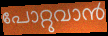
പോറ്റുവാൻ